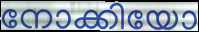
നോക്കിയോ